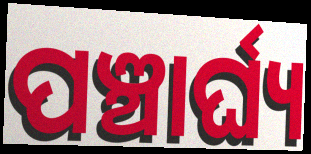
ପଞ୍ଚାର୍ଘ୍ୟ